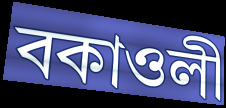
বকাওলী